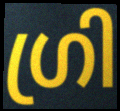
ഗ്രി